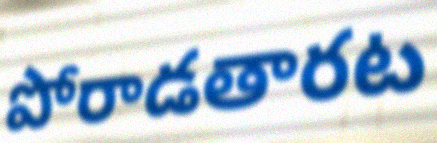
పోరాడతారట